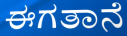
ಈಗತಾನೆ